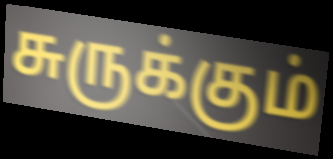
சுருக்கும்